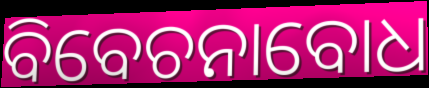
ବିବେଚନାବୋଧ